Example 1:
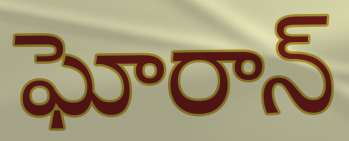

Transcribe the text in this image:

ఘోరాన్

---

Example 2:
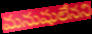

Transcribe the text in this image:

మనుషులేనని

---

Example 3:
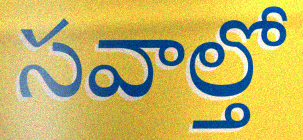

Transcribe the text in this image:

సవాల్తో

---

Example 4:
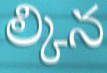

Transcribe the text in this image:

ల్కిన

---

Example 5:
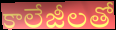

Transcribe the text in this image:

కాలేజీలతో